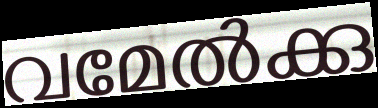
വമേൽക്കു